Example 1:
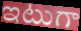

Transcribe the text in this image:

ఇటుగా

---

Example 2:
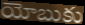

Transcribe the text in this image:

యోబుకు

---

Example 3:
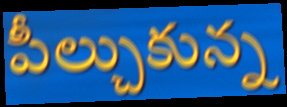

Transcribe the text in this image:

పీల్చుకున్న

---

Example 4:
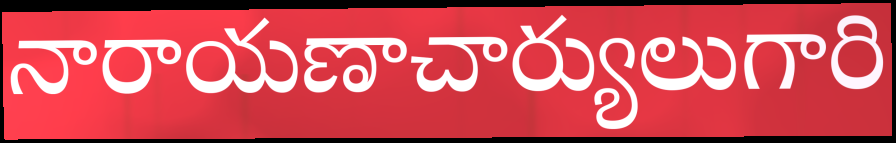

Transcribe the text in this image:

నారాయణాచార్యులుగారి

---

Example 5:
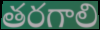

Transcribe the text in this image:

తరగాలి